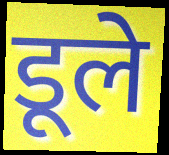
डूले